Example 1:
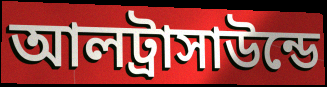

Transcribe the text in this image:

আলট্রাসাউন্ডে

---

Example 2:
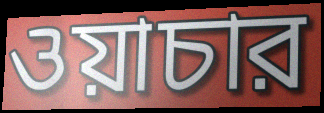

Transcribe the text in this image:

ওয়াচার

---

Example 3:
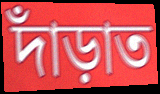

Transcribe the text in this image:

দাঁড়াত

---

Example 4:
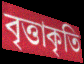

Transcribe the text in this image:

বৃত্তাকৃতি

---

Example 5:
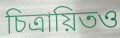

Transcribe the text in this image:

চিত্রায়িতও